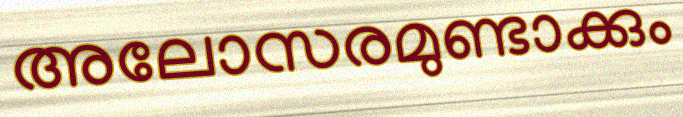
അലോസരമുണ്ടാക്കും